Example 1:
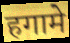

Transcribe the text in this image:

हगामे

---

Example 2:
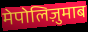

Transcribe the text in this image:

मेपोलिज़ुमाब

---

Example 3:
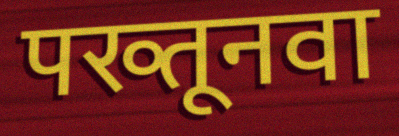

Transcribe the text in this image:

पख्तूनवा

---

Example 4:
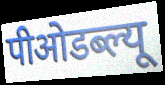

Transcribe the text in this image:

पीओडब्ल्यू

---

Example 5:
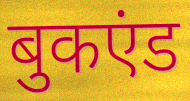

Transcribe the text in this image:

बुकएंड